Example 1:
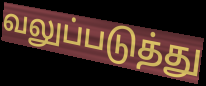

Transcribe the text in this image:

வலுப்படுத்து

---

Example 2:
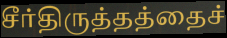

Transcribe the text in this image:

சீர்திருத்தத்தைச்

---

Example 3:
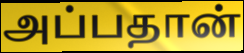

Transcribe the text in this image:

அப்பதான்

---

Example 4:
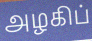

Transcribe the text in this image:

அழகிப்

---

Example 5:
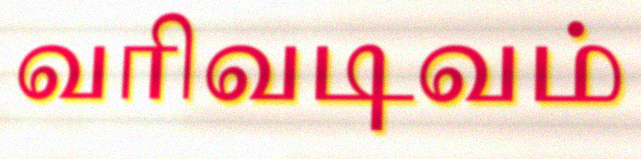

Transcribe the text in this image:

வரிவடிவம்